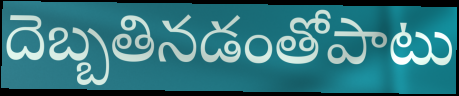
దెబ్బతినడంతోపాటు